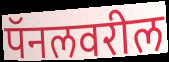
पॅनलवरील